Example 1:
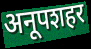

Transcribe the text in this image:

अनूपशहर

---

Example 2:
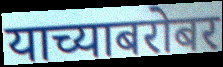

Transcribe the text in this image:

याच्याबरोबर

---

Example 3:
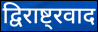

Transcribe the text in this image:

द्विराष्ट्रवाद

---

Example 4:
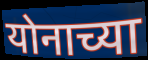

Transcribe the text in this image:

योनाच्या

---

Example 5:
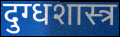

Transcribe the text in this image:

दुग्धशास्त्र